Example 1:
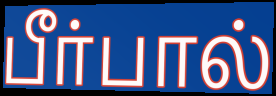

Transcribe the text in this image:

பீர்பால்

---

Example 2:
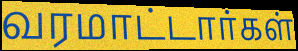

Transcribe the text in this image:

வரமாட்டார்கள்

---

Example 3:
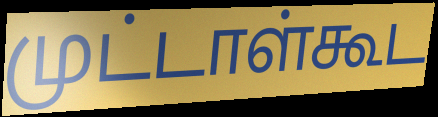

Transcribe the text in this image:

முட்டாள்கூட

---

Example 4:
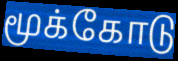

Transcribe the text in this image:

மூக்கோடு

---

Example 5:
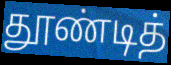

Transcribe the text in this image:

தூண்டித்